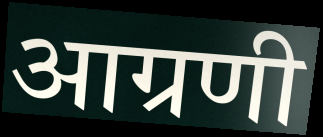
आग्रणी